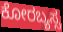
ಕೋರಬ್ಯಸ್ಸ